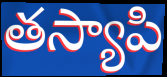
తస్యాపి